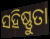
ସହିଷ୍ଣୁତା